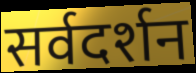
सर्वदर्शन